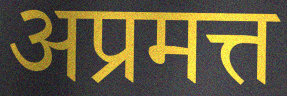
अप्रमत्त